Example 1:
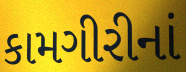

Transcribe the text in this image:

કામગીરીનાં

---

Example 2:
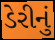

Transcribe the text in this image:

ડેરીનું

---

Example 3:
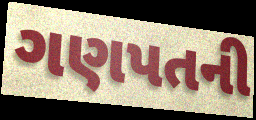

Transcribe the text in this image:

ગણપતની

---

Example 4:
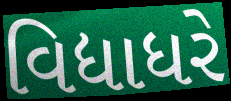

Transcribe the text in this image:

વિદ્યાધરે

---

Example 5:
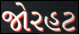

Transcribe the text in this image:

જોરહટ